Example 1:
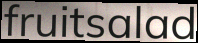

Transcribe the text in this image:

fruitsalad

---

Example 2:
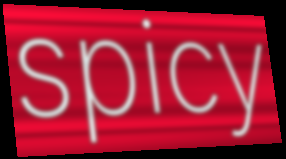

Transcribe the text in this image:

spicy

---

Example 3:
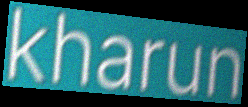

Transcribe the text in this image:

kharun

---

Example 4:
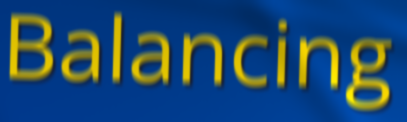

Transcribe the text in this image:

Balancing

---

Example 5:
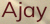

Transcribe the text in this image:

Ajay